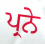
ਪ੍ਰਨੇ